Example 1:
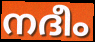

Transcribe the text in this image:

നദീം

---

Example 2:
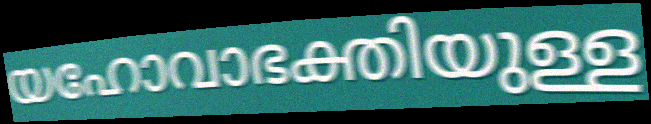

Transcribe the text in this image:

യഹോവാഭക്തിയുള്ള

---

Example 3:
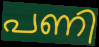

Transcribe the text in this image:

പണി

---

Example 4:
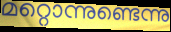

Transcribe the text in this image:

മറ്റൊന്നുണ്ടെന്നു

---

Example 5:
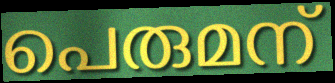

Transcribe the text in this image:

പെരുമന്